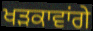
ਖੜਕਾਵਾਂਗੇ